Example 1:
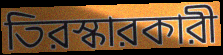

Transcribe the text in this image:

তিরস্কারকারী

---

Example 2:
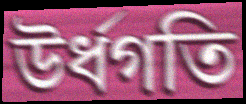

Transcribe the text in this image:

উর্ধগতি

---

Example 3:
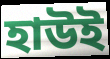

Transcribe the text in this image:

হাউই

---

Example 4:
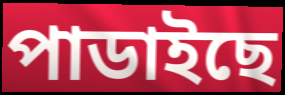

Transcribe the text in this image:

পাডাইছে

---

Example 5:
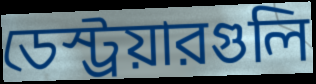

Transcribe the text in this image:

ডেস্ট্রয়ারগুলি